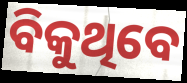
ବିକୁଥିବେ